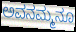
ಅವನಮ್ಮನೂ